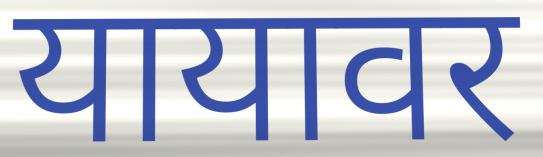
यायावर